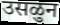
उसळुन